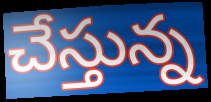
చేస్తున్న